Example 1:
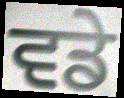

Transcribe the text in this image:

ਵਡੇ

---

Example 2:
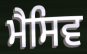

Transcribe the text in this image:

ਮੈਸਿਵ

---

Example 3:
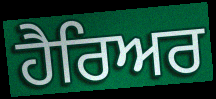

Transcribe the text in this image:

ਹੈਰਿਅਰ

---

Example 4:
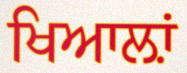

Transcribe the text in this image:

ਖਿਆਲ਼ਾਂ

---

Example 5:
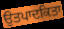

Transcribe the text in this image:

ਉਤਪਾਦਕਿਤਾ